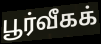
பூர்வீகக்